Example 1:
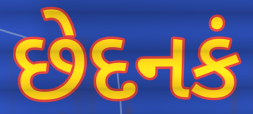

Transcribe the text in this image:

છેદનકં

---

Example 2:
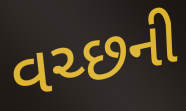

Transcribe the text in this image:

વચ્છની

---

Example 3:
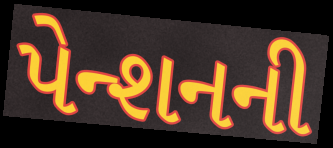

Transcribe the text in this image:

પેન્શનની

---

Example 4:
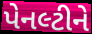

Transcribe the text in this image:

પેનલ્ટીને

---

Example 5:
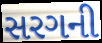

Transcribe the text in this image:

સરગની